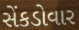
સેંકડોવાર